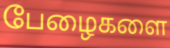
பேழைகளை